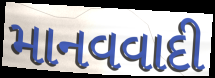
માનવવાદી